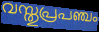
വസ്തുപ്രപഞ്ചം